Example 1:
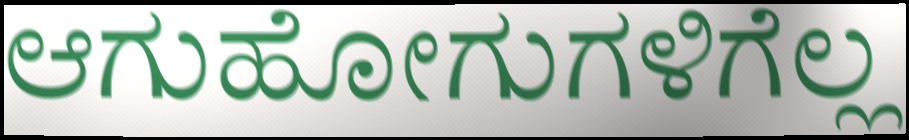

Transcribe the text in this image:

ಆಗುಹೋಗುಗಳಿಗೆಲ್ಲ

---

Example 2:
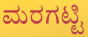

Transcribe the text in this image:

ಮರಗಟ್ಟಿ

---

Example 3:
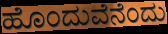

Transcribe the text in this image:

ಹೊಂದುವೆನೆಂದು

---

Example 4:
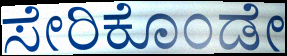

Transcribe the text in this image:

ಸೇರಿಕೊಂಡೇ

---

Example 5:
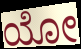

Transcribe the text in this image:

ಯೋ